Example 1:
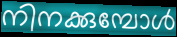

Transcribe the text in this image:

നിനക്കുമ്പോൾ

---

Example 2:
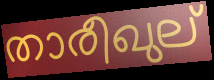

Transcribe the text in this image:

താരീഖുല്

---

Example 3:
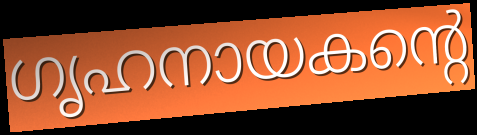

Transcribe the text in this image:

ഗൃഹനായകന്റെ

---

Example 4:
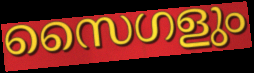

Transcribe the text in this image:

സൈഗളും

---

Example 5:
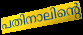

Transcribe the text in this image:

പതിനാലിന്റെ